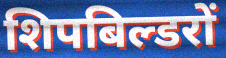
शिपबिल्डरों